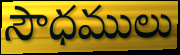
సౌధములు